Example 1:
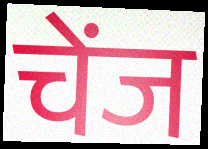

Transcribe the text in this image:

चेंज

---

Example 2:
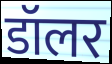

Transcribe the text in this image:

डॉलर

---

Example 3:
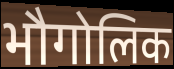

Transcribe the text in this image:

भौगोलिक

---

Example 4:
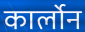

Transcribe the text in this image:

कार्लोन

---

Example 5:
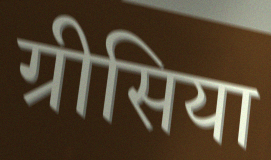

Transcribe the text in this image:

ग्रीसिया